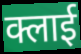
क्लाई